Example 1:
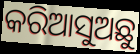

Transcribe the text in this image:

କରିଆସୁଅଛୁ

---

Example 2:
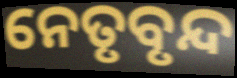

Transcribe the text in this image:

ନେତୃବୃନ୍ଦ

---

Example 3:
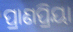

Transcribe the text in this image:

ପ୍ରାଣପ୍ରିୟା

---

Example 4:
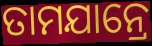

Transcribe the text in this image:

ତାମଯାନ୍ରେ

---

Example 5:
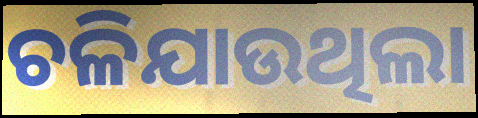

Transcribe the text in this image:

ଚଳିଯାଉଥିଲା